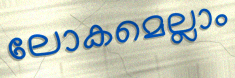
ലോകമെല്ലാം